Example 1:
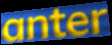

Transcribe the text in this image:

anter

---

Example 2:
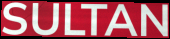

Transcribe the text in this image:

SULTAN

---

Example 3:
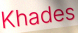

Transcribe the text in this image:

Khades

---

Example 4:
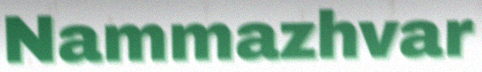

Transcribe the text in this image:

Nammazhvar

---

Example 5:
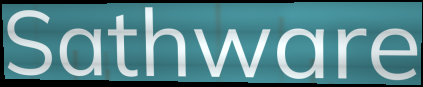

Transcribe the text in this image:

Sathware